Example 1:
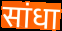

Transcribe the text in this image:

सांधा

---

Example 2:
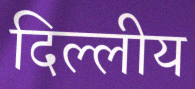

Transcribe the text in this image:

दिल्लीय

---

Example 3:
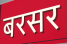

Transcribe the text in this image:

बरसर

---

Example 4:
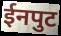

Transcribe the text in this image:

ईनपुट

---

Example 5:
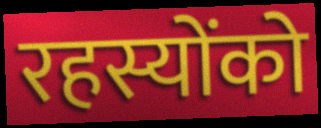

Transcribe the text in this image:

रहस्योंको